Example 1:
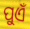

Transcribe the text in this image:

ପୁଏଁ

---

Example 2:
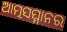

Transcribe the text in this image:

ଆତ୍ମସମ୍ମାନର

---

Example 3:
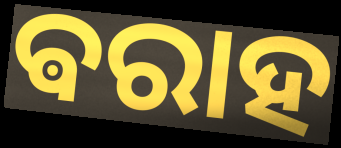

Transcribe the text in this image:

ଵରାହ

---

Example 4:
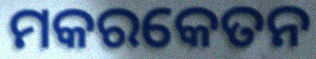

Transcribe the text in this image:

ମକରକେତନ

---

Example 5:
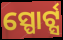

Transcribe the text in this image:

ସ୍ପୋର୍ଟ୍ସ